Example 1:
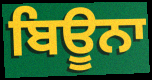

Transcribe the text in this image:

ਬਿਊਨਾ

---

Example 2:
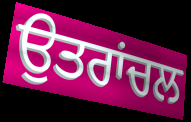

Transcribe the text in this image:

ਉਤਰਾਂਚਲ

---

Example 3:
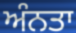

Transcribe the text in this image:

ਅੰਨਤਾ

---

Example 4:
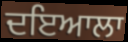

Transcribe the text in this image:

ਦਇਆਲਾ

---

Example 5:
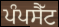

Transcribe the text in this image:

ਪੰਪਸੈੱਟ